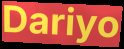
Dariyo